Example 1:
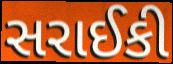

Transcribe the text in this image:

સરાઈકી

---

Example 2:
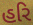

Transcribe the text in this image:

હરિ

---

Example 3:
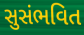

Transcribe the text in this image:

સુસંભવિત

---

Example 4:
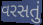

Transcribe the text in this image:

વરસતું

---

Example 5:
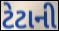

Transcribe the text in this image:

ટેટાની